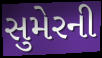
સુમેરની